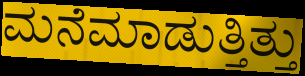
ಮನೆಮಾಡುತ್ತಿತ್ತು